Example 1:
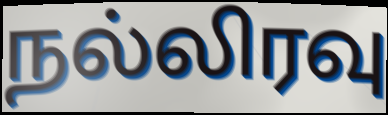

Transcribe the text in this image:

நல்லிரவு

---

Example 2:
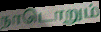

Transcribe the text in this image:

நாடொறும்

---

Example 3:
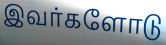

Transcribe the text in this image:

இவர்களோடு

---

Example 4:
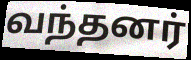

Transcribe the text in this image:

வந்தனர்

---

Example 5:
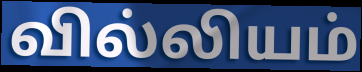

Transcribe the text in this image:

வில்லியம்